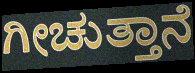
ಗೀಚುತ್ತಾನೆ